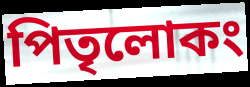
পিতৃলোকং